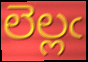
లెల్లఁ